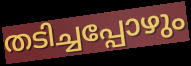
തടിച്ചപ്പോഴും